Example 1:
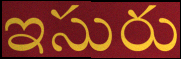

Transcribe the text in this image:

ఇసురు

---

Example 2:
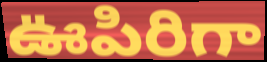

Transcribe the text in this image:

ఊపిరిగా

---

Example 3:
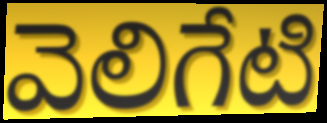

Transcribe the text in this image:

వెలిగేటి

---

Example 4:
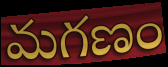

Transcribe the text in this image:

మగణం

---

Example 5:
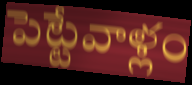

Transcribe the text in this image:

పెట్టేవాళ్లం